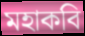
মহাকবি